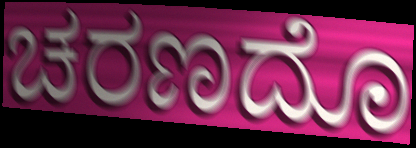
ಚರಣದೊ